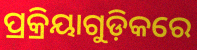
ପ୍ରକ୍ରିୟାଗୁଡ଼ିକରେ